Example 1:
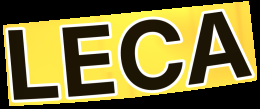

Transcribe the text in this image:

LECA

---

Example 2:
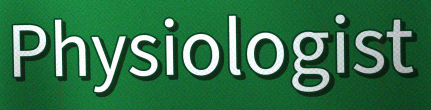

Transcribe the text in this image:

Physiologist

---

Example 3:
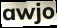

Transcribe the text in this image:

awjo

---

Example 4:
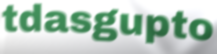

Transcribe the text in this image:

tdasgupto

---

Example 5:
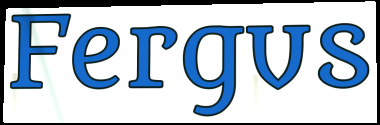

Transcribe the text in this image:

Fergus